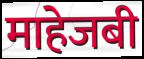
माहेजबी